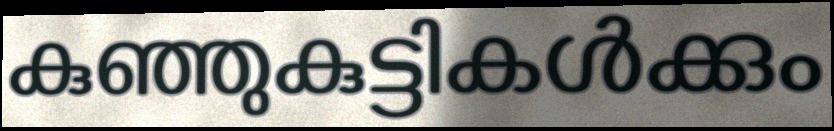
കുഞ്ഞുകുട്ടികൾക്കും